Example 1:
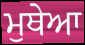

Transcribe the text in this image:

ਮੁਥੇਆ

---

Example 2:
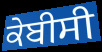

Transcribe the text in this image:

ਕੇਬੀਸੀ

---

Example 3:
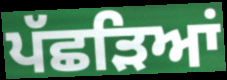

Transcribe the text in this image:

ਪੱਛੜਿਆਂ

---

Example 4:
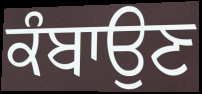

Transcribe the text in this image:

ਕੰਬਾਉਣ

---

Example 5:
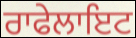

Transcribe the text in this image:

ਰਾਫੇਲਾਇਟ